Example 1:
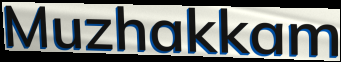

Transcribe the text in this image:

Muzhakkam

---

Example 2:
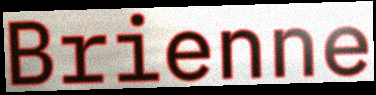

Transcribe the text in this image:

Brienne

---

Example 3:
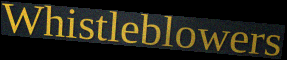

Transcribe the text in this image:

Whistleblowers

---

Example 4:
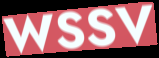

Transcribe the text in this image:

WSSV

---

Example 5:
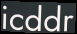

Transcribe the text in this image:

icddr